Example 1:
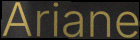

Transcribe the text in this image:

Ariane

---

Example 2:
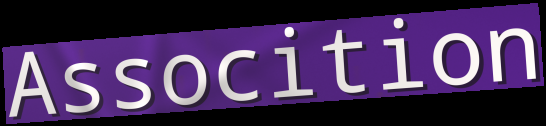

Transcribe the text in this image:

Assocition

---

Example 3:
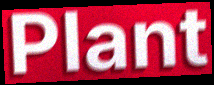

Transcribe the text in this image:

Plant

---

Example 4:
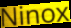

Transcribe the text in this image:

Ninox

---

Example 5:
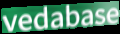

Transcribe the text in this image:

vedabase